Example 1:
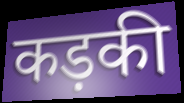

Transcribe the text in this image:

कड़की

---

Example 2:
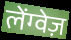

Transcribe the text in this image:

लेंग्वेज़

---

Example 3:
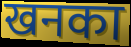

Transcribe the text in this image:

खनका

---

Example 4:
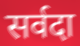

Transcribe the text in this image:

सर्वदा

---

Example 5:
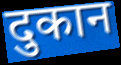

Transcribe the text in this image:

दुकान